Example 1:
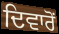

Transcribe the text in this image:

ਦਿਵਾਰੋਂ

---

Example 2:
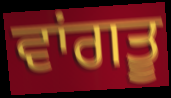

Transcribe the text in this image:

ਵਾਂਗਤੂ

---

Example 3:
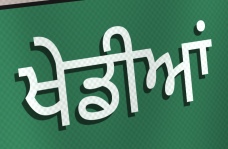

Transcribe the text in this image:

ਖੇਡੀਆਂ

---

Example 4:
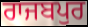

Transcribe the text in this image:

ਰਾਜਬਪੁਰ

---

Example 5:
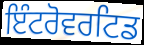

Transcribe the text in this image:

ਇੰਟਰੋਵਰਟਿਡ